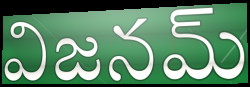
విజనమ్